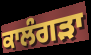
ਕਾਲੰਗੜਾ